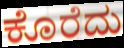
ಕೊರೆದು